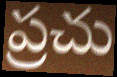
ప్రచు